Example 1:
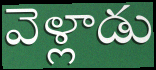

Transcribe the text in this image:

వెళ్లాడు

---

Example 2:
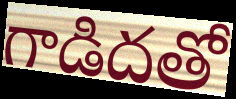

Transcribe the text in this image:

గాడిదతో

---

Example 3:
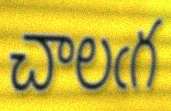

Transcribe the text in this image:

చాలఁగ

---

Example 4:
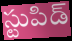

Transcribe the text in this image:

స్టుపిడ్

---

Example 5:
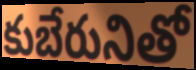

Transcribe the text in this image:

కుబేరునితో